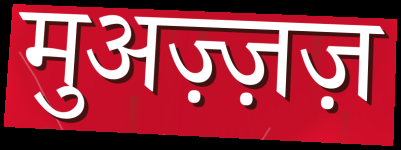
मुअज़्ज़ज़